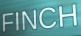
FINCH